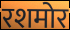
रशमोर